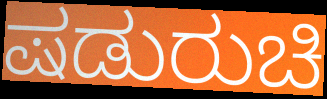
ಷಡುರುಚಿ